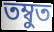
তম্বুত